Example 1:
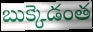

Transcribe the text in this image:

బుక్కెడంత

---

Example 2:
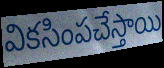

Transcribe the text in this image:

వికసింపచేస్తాయి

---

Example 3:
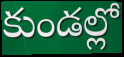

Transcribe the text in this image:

కుండల్లో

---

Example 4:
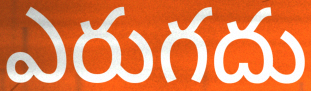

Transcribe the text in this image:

ఎరుగదు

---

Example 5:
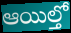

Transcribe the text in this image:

ఆయిల్తో